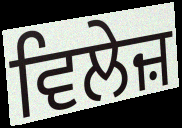
ਵਿਲੇਜ਼